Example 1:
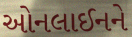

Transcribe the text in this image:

ઓનલાઈનને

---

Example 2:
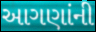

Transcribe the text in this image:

આગણાંની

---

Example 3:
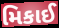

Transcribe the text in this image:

મિકાઈ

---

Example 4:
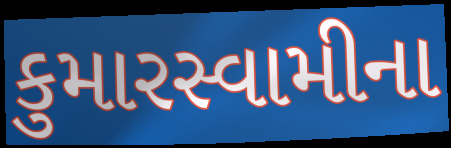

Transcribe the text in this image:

કુમારસ્વામીના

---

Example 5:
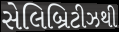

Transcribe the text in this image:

સેલિબ્રિટીઝથી